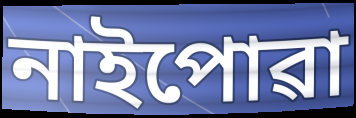
নাইপোৱা